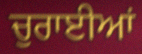
ਚੁਰਾਈਆਂ